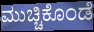
ಮುಚ್ಚಿಕೊಂಡೆ